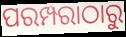
ପରମ୍ପରାଠାରୁ